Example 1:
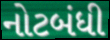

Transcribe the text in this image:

નોટબંધી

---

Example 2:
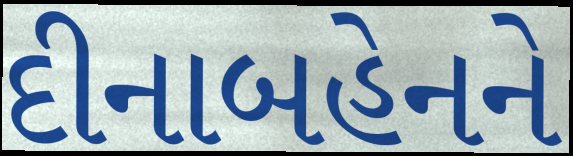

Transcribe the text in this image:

દીનાબહેનને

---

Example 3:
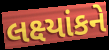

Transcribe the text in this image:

લક્ષ્યાંકને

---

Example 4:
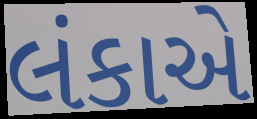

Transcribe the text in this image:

લંકાએ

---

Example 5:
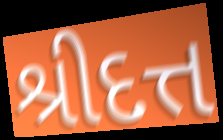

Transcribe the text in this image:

શ્રીદત્ત